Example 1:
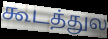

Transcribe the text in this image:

கூடத்துல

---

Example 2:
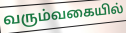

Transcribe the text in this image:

வரும்வகையில்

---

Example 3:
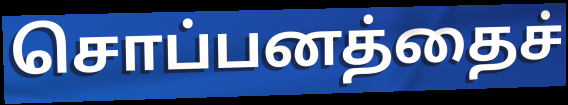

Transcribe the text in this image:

சொப்பனத்தைச்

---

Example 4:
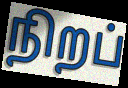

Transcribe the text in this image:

நிறப்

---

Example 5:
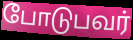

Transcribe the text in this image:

போடுபவர்